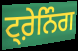
ਟ੍ਰ਼ੇਨਿੰਗ